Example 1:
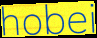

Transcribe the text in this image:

hobei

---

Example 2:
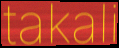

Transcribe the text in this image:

takali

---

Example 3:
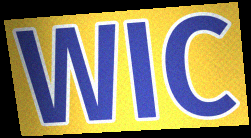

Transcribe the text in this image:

WIC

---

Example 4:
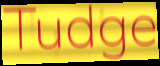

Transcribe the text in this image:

Tudge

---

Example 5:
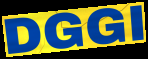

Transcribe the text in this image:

DGGI